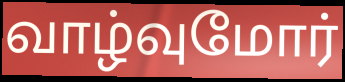
வாழ்வுமோர்